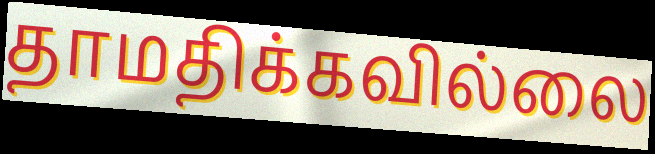
தாமதிக்கவில்லை